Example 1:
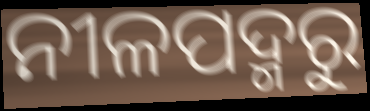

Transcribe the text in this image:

ନୀଳପଦ୍ମରୁ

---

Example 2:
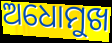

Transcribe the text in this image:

ଅଧୋମୁଖ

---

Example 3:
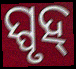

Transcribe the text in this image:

ସ୍ପୃହ୍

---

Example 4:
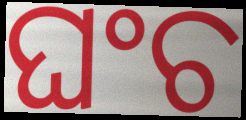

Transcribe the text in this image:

ଘଂଚ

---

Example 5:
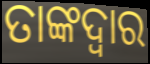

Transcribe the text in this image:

ତାଙ୍କଦ୍ୱାର